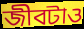
জীবটাও